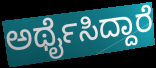
ಅರ್ಥೈಸಿದ್ದಾರೆ